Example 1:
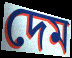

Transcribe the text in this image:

দেম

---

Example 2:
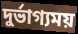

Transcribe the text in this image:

দুর্ভাগ্যময়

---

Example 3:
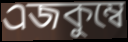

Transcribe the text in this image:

এজকুম্বে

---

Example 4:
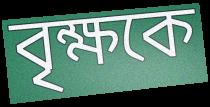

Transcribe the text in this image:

বৃক্ষকে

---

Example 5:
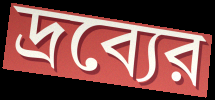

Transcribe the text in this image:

দ্রব্যের